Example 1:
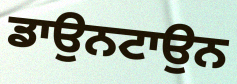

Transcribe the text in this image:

ਡਾਉਨਟਾਉਨ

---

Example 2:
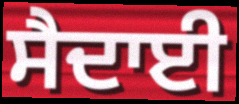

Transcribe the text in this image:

ਸੈਦਾਈ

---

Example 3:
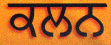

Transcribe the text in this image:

ਕਲਨ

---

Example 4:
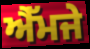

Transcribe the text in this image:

ਐੱਮਜੇ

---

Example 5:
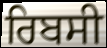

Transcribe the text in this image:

ਰਿਬਸੀ